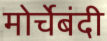
मोर्चेबंदी